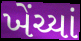
ખેંચ્યાં